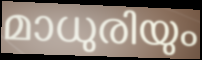
മാധുരിയും